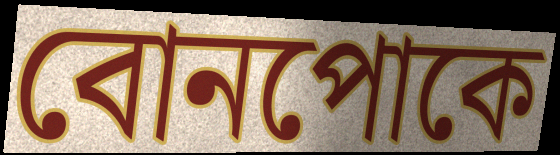
বোনপোকে